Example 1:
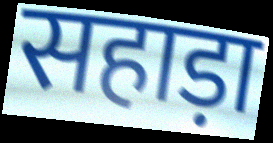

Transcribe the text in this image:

सहाड़ा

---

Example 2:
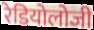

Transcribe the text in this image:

रेडियोलोजी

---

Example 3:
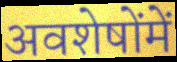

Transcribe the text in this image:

अवशेषोंमें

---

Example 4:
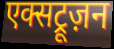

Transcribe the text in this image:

एक्सट्रूज़न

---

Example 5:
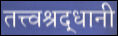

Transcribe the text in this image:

तत्त्वश्रद्धानी